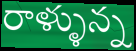
రాళ్ళున్న